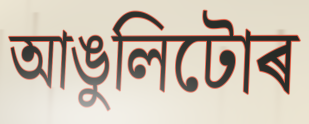
আঙুলিটোৰ